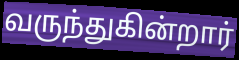
வருந்துகின்றார்